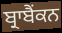
ਬ੍ਰਾਬੈਂਕਨ